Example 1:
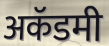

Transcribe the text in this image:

अकॅडमी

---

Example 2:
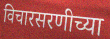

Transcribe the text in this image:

विचारसरणीच्या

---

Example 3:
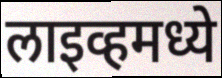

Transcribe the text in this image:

लाइव्हमध्ये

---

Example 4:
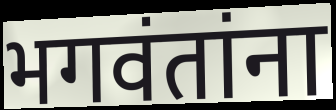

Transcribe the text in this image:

भगवंतांना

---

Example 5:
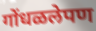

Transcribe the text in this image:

गोंधळलेपण